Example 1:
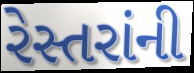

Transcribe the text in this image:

રેસ્તરાંની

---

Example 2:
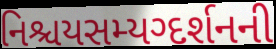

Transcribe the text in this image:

નિશ્ચયસમ્યગ્દર્શનની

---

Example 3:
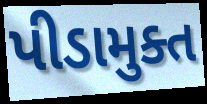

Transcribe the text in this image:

પીડામુક્ત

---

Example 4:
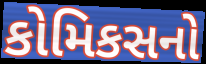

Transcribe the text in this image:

કોમિકસનો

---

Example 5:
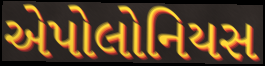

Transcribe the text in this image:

એપોલોનિયસ